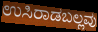
ಉಸಿರಾಡಬಲ್ಲವು